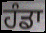
ਹੰਡਾ